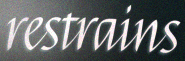
restrains